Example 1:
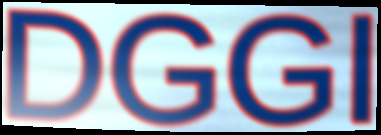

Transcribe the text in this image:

DGGI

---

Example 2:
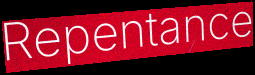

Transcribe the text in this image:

Repentance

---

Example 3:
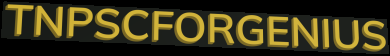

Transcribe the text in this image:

TNPSCFORGENIUS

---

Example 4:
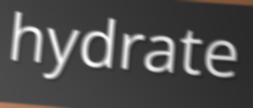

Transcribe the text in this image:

hydrate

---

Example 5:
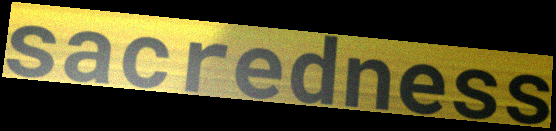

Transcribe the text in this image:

sacredness